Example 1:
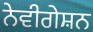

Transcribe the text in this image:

ਨੇਵੀਗੇਸ਼ਨ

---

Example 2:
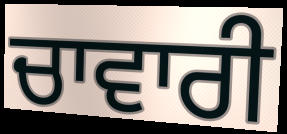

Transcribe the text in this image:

ਚਾਵਾਰੀ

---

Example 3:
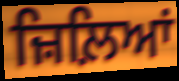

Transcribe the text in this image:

ਜ਼ਿਲ਼ਿਆਂ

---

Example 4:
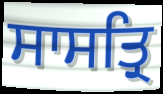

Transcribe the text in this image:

ਸਾਸਤ੍ਰਿ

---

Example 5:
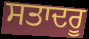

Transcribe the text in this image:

ਸਤਾਦਰੂ